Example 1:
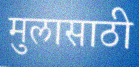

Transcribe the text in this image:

मुलासाठी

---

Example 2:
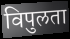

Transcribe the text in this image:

विपुलता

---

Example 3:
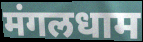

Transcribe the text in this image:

मंगलधाम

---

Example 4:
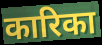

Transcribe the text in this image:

कारिका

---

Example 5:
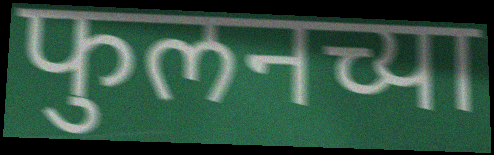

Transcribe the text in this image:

फुलनच्या